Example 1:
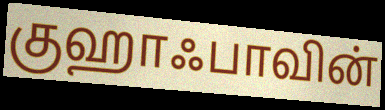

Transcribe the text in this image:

குஹாஃபாவின்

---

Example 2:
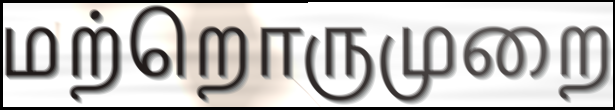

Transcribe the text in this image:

மற்றொருமுறை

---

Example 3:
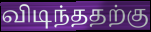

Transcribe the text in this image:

விடிந்ததற்கு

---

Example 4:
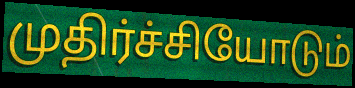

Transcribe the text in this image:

முதிர்ச்சியோடும்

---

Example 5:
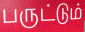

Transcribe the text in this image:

பருட்டும்